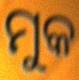
ମୁକ